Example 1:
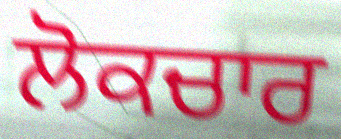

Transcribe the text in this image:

ਲੋਕਚਾਰ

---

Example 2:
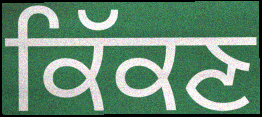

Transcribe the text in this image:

ਕਿੱਕਣ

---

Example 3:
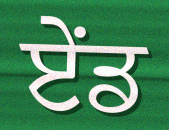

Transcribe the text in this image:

ਏੰਡ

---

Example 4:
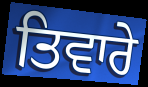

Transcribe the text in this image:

ਤਿਵਾਰੇ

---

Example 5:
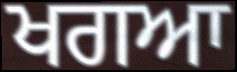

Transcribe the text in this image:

ਖਗਆ